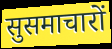
सुसमाचारों